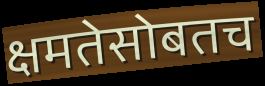
क्षमतेसोबतच